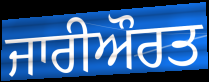
ਜਾਰੀਔਰਤ